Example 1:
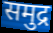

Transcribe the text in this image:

समुद्र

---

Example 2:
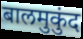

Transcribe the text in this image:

बालमुकुंद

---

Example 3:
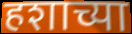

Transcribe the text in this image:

हशाच्या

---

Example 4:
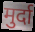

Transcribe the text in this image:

मुर्दा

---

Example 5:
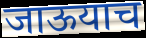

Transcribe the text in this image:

जाऊयाच